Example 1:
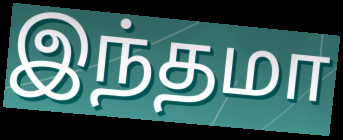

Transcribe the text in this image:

இந்தமா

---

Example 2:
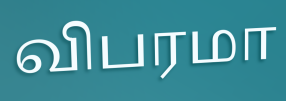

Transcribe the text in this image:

விபரமா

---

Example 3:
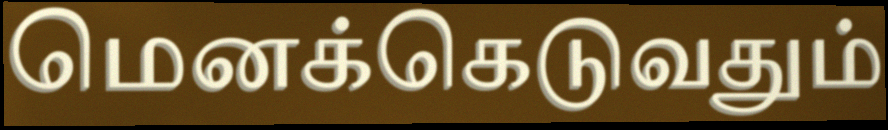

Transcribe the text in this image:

மெனக்கெடுவதும்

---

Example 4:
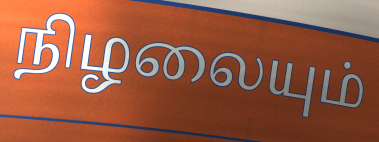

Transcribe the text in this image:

நிழலையும்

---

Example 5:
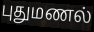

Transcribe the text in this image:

புதுமணல்